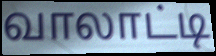
வாலாட்டி